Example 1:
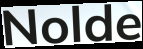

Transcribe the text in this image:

Nolde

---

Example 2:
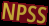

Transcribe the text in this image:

NPSS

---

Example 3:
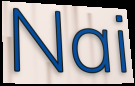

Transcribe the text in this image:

Nai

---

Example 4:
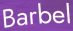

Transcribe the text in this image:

Barbel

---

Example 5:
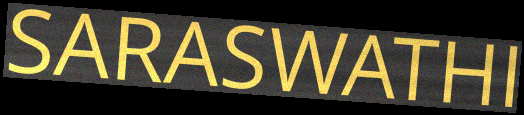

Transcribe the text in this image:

SARASWATHI